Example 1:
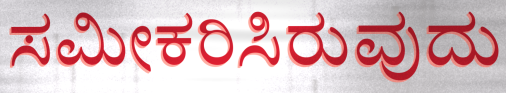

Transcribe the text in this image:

ಸಮೀಕರಿಸಿರುವುದು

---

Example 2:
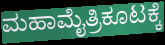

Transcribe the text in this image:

ಮಹಾಮೈತ್ರಿಕೂಟಕ್ಕೆ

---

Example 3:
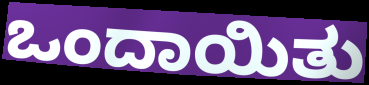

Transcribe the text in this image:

ಒಂದಾಯಿತು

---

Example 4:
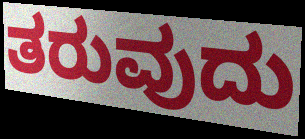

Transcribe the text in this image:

ತರುವುದು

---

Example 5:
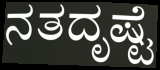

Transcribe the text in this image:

ನತದೃಷ್ಟೆ